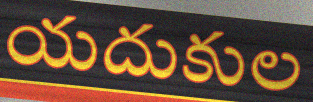
యదుకుల